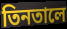
তিনতালে